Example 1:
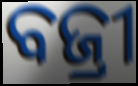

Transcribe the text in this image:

ବଜ୍ରୀ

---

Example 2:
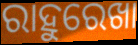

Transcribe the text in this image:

ରାହୁରେଖା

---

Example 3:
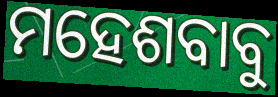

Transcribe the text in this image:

ମହେଶବାବୁ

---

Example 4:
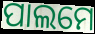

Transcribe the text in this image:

ପାଲମେ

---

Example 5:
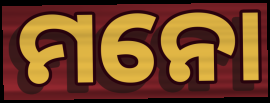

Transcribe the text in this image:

ମନୋ